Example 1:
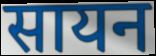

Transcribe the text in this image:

सायन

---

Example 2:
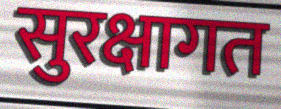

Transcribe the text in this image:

सुरक्षागत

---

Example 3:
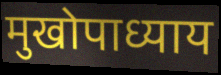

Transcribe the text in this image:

मुखोपाध्याय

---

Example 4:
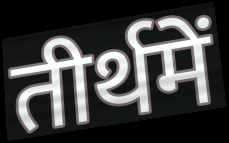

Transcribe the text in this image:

तीर्थमें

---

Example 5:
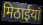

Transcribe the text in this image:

मिठाईयां